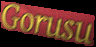
Gorusu